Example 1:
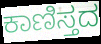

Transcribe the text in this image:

ಕಾಣಿಸ್ತದ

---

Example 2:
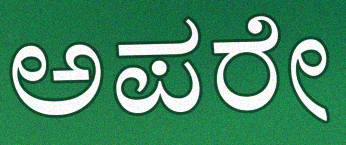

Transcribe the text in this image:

ಅಪರೇ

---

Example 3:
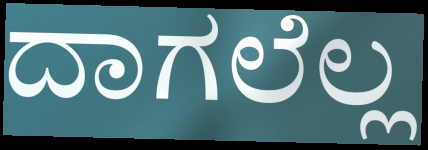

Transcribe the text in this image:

ದಾಗಲೆಲ್ಲ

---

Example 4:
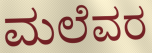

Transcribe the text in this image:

ಮಲೆವರ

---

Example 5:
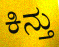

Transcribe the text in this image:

ಕಿನ್ತು